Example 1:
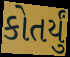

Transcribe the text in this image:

કોતર્યું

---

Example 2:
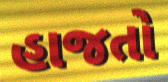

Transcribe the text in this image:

હાજતો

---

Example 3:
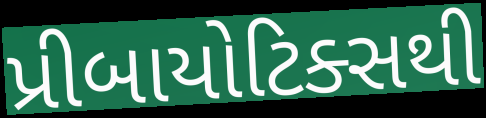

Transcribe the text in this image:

પ્રીબાયોટિક્સથી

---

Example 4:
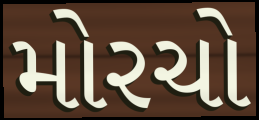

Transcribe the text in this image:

મોરચો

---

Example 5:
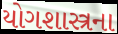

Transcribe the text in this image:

યોગશાસ્ત્રના